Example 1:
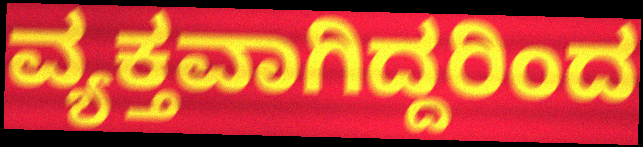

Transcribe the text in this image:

ವ್ಯಕ್ತವಾಗಿದ್ದರಿಂದ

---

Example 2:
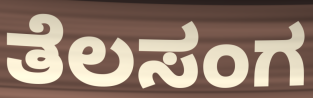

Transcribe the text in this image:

ತೆಲಸಂಗ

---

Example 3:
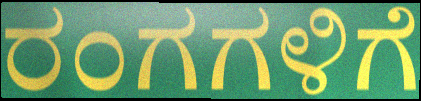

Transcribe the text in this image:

ರಂಗಗಳಿಗೆ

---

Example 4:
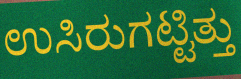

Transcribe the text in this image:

ಉಸಿರುಗಟ್ಟಿತ್ತು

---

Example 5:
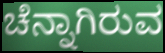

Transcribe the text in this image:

ಚೆನ್ನಾಗಿರುವ